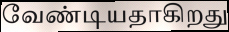
வேண்டியதாகிறது